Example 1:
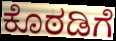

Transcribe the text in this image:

ಕೊಠಡಿಗೆ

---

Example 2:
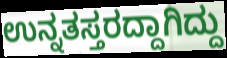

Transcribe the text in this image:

ಉನ್ನತಸ್ತರದ್ದಾಗಿದ್ದು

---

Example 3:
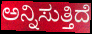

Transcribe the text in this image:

ಅನ್ನಿಸುತ್ತಿದೆ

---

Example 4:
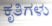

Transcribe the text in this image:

ಕೃತಿಗಳು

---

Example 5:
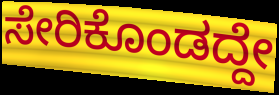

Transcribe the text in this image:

ಸೇರಿಕೊಂಡದ್ದೇ